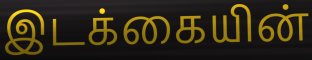
இடக்கையின்